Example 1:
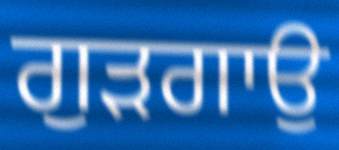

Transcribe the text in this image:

ਗੁੜਗਾਉ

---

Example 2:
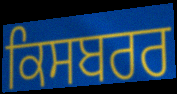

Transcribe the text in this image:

ਕਿਸਬਰਰ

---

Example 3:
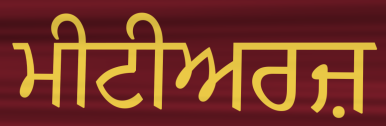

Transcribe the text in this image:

ਮੀਟੀਅਰਜ਼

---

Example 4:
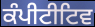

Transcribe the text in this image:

ਕੰਪੀਟੀਟਿਵ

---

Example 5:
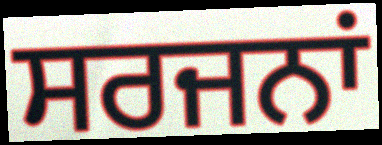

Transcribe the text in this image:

ਸਰਜਨਾਂ